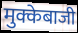
मुक्केबाजी